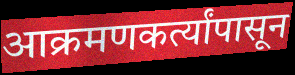
आक्रमणकर्त्यांपासून